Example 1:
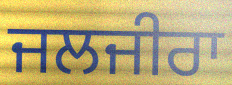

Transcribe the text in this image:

ਜਲਜੀਰਾ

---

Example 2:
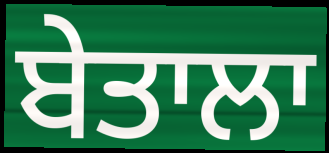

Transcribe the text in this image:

ਬੇਤਾਲਾ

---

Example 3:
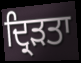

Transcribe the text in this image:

ਦ੍ਰਿੜਤਾ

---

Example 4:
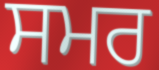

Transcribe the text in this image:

ਸਮਰ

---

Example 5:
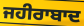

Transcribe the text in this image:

ਜਹੀਰਾਬਾਦ